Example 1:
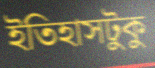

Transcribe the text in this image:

ইতিহাসটুকু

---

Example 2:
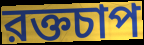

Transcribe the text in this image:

রক্তচাপ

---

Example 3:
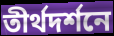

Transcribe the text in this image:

তীর্থদর্শনে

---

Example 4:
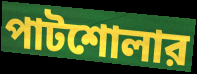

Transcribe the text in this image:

পাটশোলার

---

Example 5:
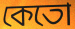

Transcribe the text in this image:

কেতো